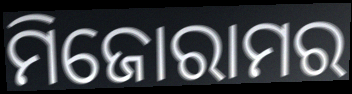
ମିଜୋରାମର